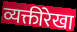
व्यक्तीरेखा